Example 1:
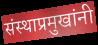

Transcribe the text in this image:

संस्थाप्रमुखांनी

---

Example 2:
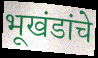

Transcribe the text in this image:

भूखंडांचे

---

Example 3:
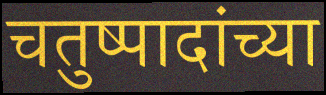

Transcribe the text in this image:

चतुष्पादांच्या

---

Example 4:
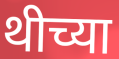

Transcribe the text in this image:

थीच्या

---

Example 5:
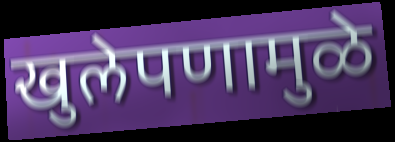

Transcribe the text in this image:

खुलेपणामुळे